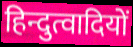
हिन्दुत्वादियों